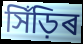
সিঁড়িৰ